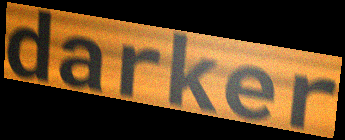
darker